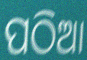
ପଠିଆ